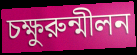
চক্ষুরুন্মীলন